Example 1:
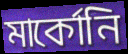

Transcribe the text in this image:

মার্কোনি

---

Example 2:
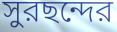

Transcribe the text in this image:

সুরছন্দের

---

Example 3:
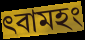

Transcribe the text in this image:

ৎবামহং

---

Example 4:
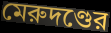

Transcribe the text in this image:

মেরুদণ্ডের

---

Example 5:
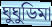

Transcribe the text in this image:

ঘুঘুডিমা